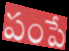
పంపే